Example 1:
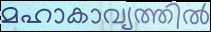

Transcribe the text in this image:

മഹാകാവ്യത്തിൽ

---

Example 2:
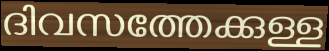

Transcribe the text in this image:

ദിവസത്തേക്കുള്ള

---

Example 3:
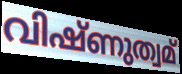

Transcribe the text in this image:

വിഷ്ണുത്വമ്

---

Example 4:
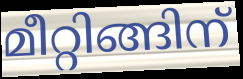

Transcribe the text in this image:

മീറ്റിങ്ങിന്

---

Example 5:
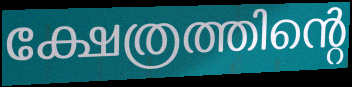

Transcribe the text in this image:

ക്ഷേത്രത്തിന്റെ